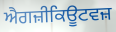
ਐਗਜ਼ੀਕਿਊਟਵਜ਼